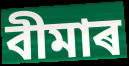
বীমাৰ